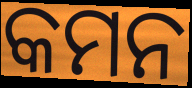
କମନ